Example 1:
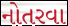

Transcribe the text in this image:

નોતરવા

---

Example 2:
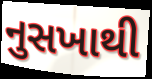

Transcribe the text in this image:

નુસખાથી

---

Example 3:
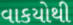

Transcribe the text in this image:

વાકયોથી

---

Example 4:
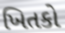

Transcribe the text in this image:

ખિતકો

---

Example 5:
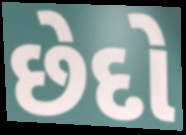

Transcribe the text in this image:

છેદો